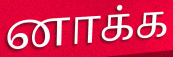
னாக்க